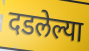
दडलेल्या